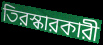
তিরস্কারকারী